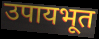
उपायभूत